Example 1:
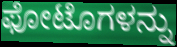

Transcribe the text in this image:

ಫೋಟೊಗಳನ್ನು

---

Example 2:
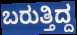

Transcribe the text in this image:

ಬರುತ್ತಿದ್ದ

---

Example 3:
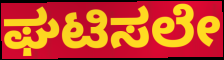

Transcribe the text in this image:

ಘಟಿಸಲೇ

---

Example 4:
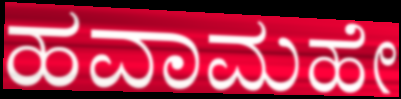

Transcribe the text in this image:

ಹವಾಮಹೇ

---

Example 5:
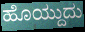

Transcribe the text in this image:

ಹೊಯ್ದುದು